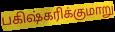
பகிஷ்கரிக்குமாறு